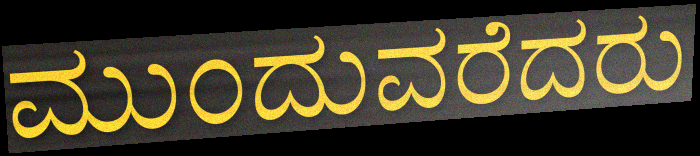
ಮುಂದುವರೆದರು